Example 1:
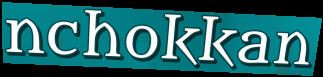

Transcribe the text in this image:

nchokkan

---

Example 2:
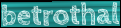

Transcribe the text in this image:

betrothal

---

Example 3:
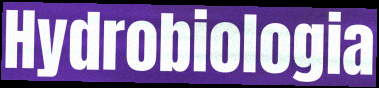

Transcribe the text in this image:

Hydrobiologia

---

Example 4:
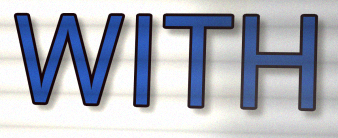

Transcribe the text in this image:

WITH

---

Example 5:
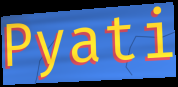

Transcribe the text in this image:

Pyati